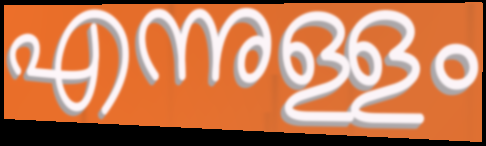
എന്നുള്ളം